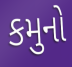
કમુનો